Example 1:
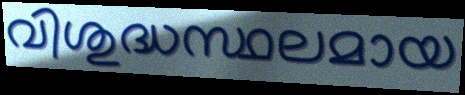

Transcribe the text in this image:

വിശുദ്ധസ്ഥലമായ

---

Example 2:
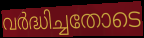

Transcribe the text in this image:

വർദ്ധിച്ചതോടെ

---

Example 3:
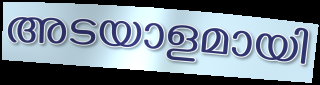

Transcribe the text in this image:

അടയാളമായി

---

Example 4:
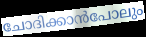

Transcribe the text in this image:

ചോദിക്കാൻപോലും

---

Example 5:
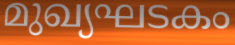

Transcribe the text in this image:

മുഖ്യഘടകം